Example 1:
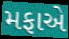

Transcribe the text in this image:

મફાએ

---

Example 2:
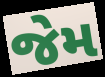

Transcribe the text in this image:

જેમ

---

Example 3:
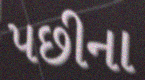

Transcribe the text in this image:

પછીના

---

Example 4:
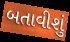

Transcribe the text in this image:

બતાવીશું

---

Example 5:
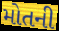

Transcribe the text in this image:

મોતની